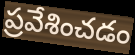
ప్రవేశించడం